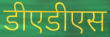
डीएडीएस